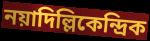
নয়াদিল্লিকেন্দ্রিক